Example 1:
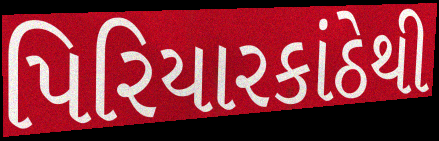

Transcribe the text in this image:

પિરિયારકાંઠેથી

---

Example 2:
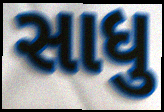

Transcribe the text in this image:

સાધુ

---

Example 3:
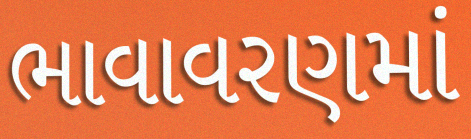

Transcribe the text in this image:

ભાવાવરણમાં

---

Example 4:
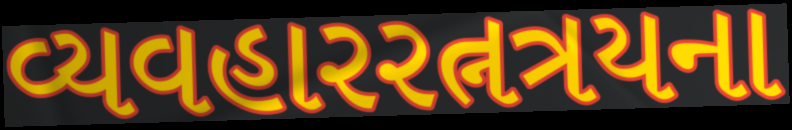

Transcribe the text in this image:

વ્યવહારરત્નત્રયના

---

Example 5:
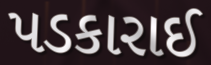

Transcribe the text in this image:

પડકારાઈ